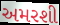
અમરશી